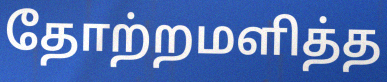
தோற்றமளித்த